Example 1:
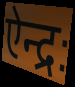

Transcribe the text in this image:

ऐन्द्रः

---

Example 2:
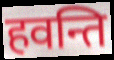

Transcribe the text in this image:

हवन्ति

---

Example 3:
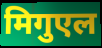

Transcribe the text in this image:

मिगुएल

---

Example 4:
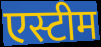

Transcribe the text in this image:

एस्टीम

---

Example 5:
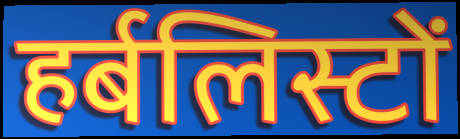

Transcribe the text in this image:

हर्बलिस्टों